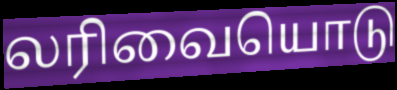
லரிவையொடு